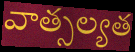
వాత్సల్యత